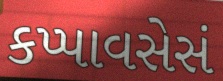
કપ્પાવસેસં